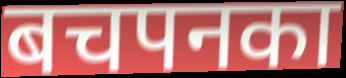
बचपनका